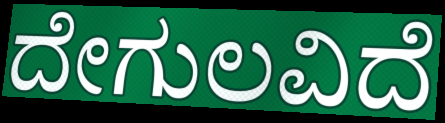
ದೇಗುಲವಿದೆ